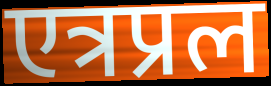
एत्रप्रल